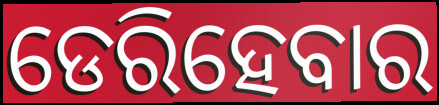
ଡେରିହେବାର